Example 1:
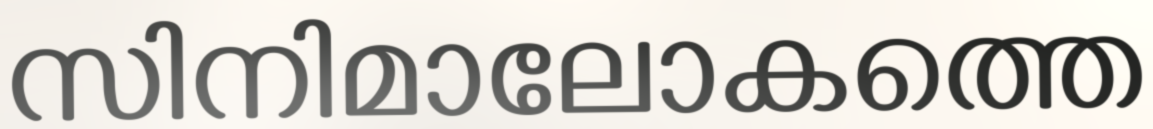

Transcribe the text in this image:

സിനിമാലോകത്തെ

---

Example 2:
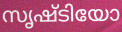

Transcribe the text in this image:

സൃഷ്ടിയോ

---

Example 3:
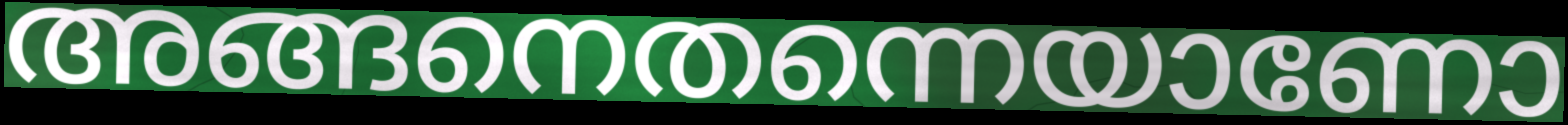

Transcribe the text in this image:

അങ്ങനെതന്നെയാണോ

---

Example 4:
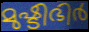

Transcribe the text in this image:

മുഷ്ടിഭിർ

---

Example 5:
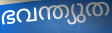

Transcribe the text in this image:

ഭവന്ത്യുത